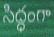
సిద్ధంగా